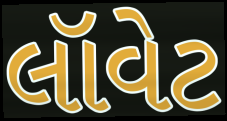
લૉવેટ